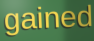
gained